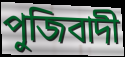
পুজিবাদী